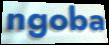
ngoba